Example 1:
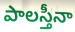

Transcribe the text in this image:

పాలస్తీనా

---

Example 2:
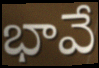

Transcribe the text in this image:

భావే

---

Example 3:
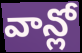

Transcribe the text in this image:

వాన్లో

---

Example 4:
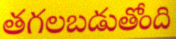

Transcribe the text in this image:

తగలబడుతోంది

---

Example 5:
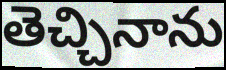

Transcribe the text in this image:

తెచ్చినాను